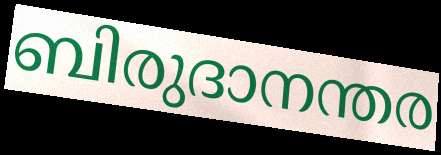
ബിരുദാനന്തര